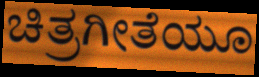
ಚಿತ್ರಗೀತೆಯೂ